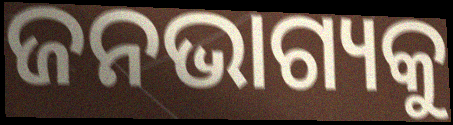
ଜନଭାଗ୍ୟକୁ